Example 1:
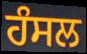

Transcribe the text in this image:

ਹੰਸਲ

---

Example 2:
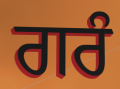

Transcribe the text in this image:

ਗਰੰ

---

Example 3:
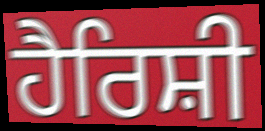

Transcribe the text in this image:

ਹੈਰਿਸ਼ੀ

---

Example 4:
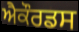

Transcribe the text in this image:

ਐਕੌਰਡਸ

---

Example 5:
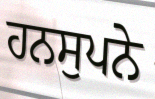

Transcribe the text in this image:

ਹਨਸੁਪਨੇ